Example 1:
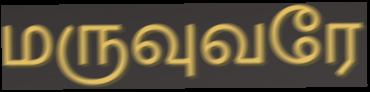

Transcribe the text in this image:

மருவுவரே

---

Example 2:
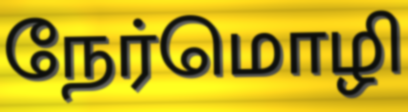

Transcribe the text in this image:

நேர்மொழி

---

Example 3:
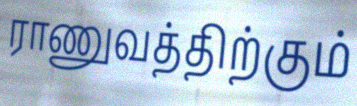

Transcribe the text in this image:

ராணுவத்திற்கும்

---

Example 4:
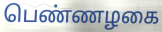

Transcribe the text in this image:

பெண்ணழகை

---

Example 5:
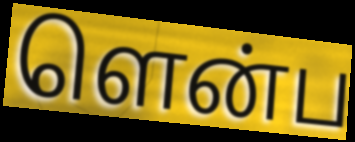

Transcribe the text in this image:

ளென்ப